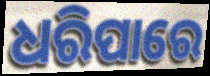
ଧରିପାରେ